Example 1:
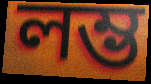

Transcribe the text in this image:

লম্ভ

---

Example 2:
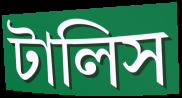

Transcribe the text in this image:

টালিস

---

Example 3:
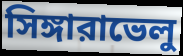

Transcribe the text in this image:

সিঙ্গারাভেলু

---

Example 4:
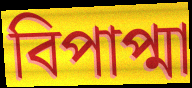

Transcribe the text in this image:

বিপাপ্মা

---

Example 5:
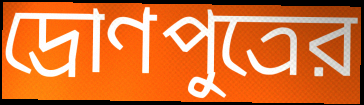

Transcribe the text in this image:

দ্রোণপুত্রের